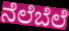
ನೆಲೆಬೆಲೆ